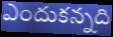
ఎందుకన్నది